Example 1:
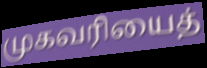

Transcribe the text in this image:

முகவரியைத்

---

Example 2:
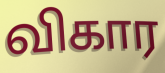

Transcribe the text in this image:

விகார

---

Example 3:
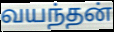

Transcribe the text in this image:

வயந்தன்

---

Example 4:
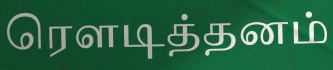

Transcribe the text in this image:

ரௌடித்தனம்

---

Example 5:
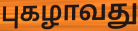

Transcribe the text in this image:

புகழாவது